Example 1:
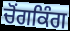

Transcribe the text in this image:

ਚੋਂਗਕਿੰਗ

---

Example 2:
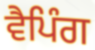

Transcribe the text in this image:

ਵੈਪਿੰਗ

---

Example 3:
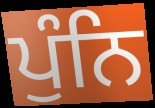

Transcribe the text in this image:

ਪੁੰਨਿ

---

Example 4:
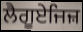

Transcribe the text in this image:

ਲੈਗੂਏਜਿਜ਼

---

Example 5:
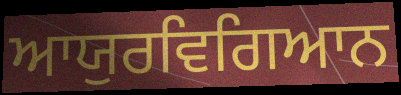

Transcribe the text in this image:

ਆਯੁਰਵਿਗਿਆਨ